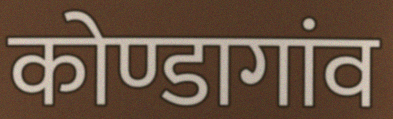
कोण्डागांव